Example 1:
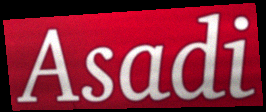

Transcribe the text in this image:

Asadi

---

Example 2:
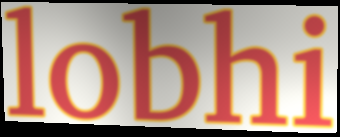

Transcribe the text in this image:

lobhi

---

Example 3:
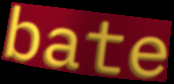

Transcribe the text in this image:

bate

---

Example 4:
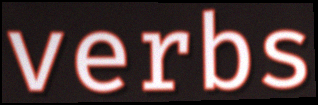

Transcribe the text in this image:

verbs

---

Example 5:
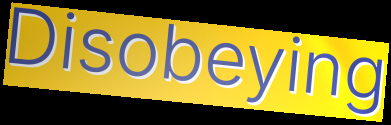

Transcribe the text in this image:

Disobeying